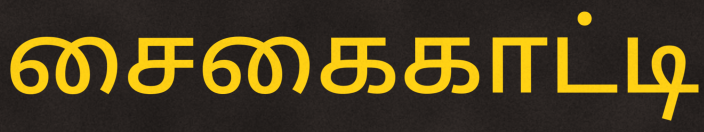
சைகைகாட்டி